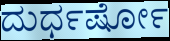
ದುರ್ಧರ್ಷೋ